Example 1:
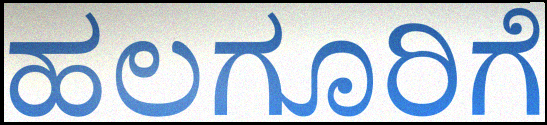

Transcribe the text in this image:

ಹಲಗೂರಿಗೆ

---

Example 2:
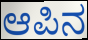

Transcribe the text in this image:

ಆಪಿನ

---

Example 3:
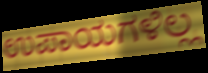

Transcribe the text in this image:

ಉಪಾಯಗಳಿಲ್ಲ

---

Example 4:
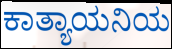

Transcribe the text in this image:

ಕಾತ್ಯಾಯನಿಯ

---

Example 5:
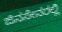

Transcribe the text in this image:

ಜಿನಸೇನರಲ್ಲಿ